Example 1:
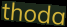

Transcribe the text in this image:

thoda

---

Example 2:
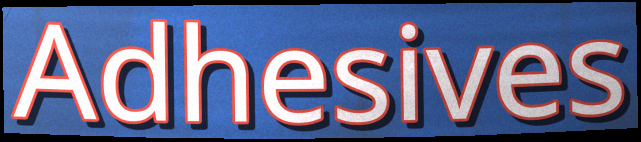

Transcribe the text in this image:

Adhesives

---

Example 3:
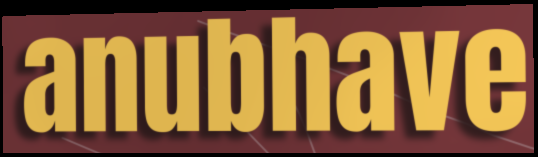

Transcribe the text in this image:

anubhave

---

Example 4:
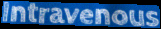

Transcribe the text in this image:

Intravenous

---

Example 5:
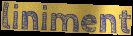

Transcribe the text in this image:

liniment